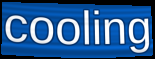
cooling